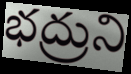
భద్రుని